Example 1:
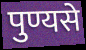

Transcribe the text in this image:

पुण्यसे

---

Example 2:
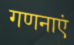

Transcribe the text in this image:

गणनाएं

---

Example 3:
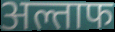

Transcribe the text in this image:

अल्ताफ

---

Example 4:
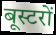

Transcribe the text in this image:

बूस्टरों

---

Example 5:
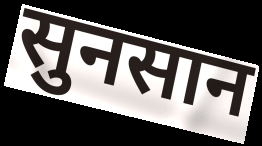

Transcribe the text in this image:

सुनसान